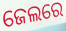
ଜେଲରେ